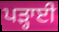
ਪੜ੍ਹਾਈ